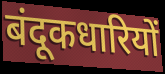
बंदूकधारियों